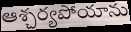
ఆశ్చర్యపోయాను